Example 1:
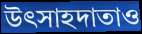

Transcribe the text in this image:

উৎসাহদাতাও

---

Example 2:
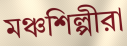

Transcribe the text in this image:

মঞ্চশিল্পীরা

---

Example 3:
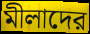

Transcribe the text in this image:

মীলাদের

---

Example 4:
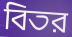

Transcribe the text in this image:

বিতর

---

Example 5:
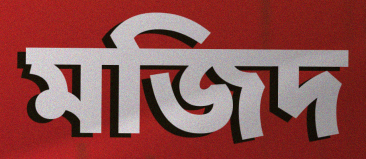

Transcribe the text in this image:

মজিদ